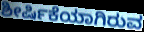
ಶೀರ್ಷಿಕೆಯಾಗಿರುವ